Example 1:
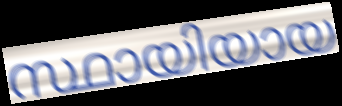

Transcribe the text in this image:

സ്ഥായിയായ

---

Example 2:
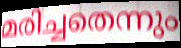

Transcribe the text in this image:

മരിച്ചതെന്നും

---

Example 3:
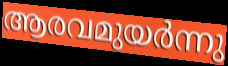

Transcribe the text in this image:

ആരവമുയർന്നു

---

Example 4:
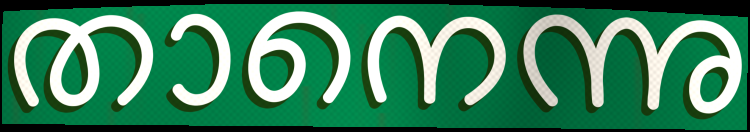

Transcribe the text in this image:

താനെന്നു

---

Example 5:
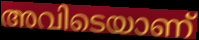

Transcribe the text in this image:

അവിടെയാണ്